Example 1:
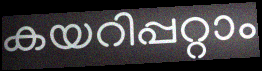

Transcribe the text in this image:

കയറിപ്പറ്റാം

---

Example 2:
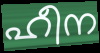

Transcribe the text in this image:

ഹീന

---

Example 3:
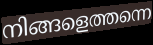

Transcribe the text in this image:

നിങ്ങളെത്തന്നെ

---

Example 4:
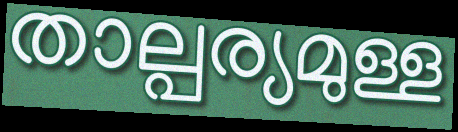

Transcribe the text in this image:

താല്പര്യമുള്ള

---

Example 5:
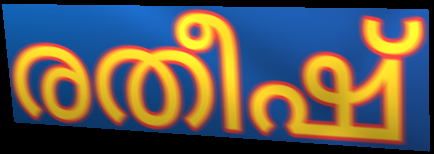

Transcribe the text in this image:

രതീഷ്